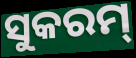
ସୁକରମ୍